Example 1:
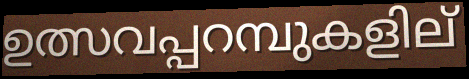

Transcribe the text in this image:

ഉത്സവപ്പറമ്പുകളില്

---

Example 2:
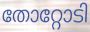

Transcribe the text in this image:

തോറ്റോടി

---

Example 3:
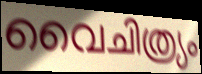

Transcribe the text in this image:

വൈചിത്ര്യം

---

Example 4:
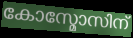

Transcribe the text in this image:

കോസ്മോസിന്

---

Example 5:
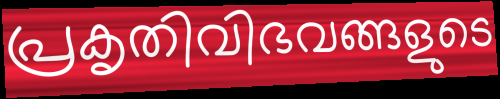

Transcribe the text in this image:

പ്രകൃതിവിഭവങ്ങളുടെ